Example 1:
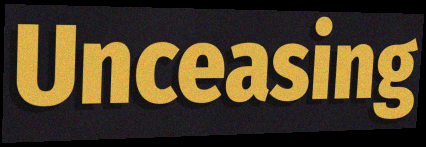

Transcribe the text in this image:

Unceasing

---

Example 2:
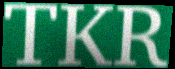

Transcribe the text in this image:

TKR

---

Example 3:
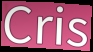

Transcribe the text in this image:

Cris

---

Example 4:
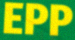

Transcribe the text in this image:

EPP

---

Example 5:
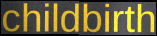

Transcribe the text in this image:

childbirth